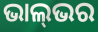
ଭାଲ୍‌ଭର